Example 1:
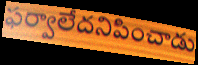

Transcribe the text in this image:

ఫర్వాలేదనిపించాడు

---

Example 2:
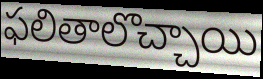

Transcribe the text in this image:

ఫలితాలొచ్చాయి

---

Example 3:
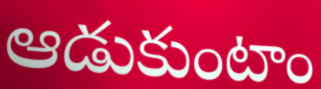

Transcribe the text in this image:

ఆడుకుంటాం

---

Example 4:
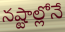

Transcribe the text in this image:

నష్టాల్లోనే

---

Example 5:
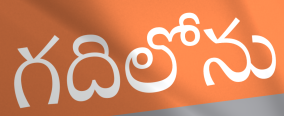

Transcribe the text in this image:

గదిలోను